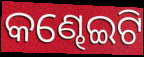
କଣ୍ଢେଇଟି